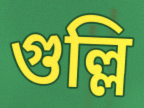
গুল্লি